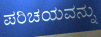
ಪರಿಚಯವನ್ನು